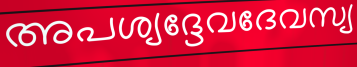
അപശ്യദ്ദേവദേവസ്യ